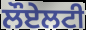
ਲੌਏਲਟੀ